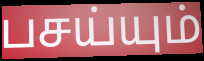
பசய்யும்